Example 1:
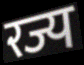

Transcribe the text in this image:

रज्य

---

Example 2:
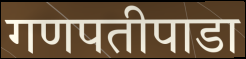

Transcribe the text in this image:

गणपतीपाडा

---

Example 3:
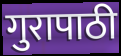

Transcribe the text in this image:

गुरापाठी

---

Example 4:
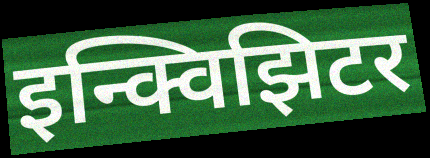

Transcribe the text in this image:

इन्क्विझिटर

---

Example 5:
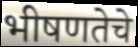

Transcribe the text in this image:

भीषणतेचे